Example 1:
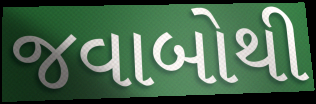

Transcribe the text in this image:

જવાબોથી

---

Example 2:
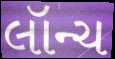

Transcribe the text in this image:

લૉન્ચ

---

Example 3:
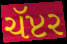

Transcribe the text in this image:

ચૅપ્ટર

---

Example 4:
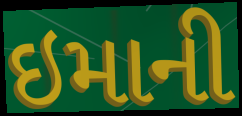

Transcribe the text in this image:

ઇમાની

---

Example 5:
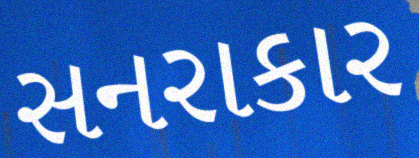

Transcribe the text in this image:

સનરાકાર